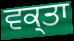
ਵਕ੍ਤਾ